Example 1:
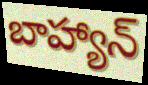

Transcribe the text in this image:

బాహ్యాన్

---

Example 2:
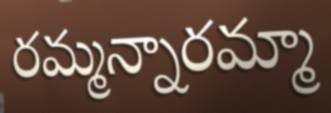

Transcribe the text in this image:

రమ్మన్నారమ్మా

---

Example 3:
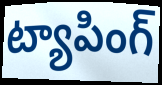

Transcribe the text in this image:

ట్యాపింగ్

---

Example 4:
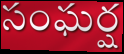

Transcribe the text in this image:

సంఘర్ష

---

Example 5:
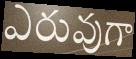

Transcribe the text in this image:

ఎరువుగా